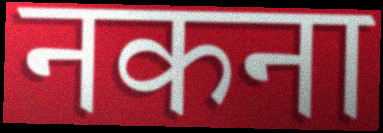
नकना